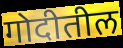
गोदीतील